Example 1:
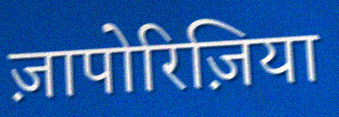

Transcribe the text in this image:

ज़ापोरिज़िया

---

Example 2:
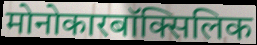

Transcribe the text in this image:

मोनोकारबॉक्सिलिक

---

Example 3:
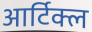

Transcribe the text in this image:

आर्टिक्ल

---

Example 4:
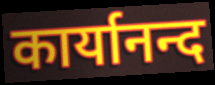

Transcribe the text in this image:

कार्यानन्द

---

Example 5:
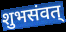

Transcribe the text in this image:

शुभसंवत्